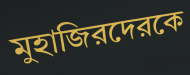
মুহাজিরদেরকে